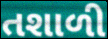
તશાળી